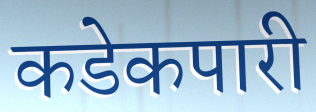
कडेकपारी